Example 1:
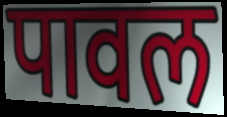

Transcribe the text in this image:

पावल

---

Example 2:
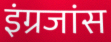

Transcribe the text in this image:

इंग्रजांस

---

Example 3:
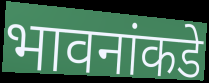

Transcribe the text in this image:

भावनांकडे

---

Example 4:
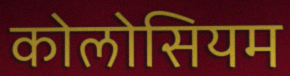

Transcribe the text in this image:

कोलोसियम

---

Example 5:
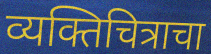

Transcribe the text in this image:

व्यक्तिचित्राचा